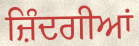
ਜ਼ਿੰਦਗੀਆਂ